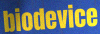
biodevice